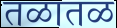
तळातळ